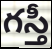
గస్తీ